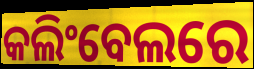
କଲିଂବେଲରେ